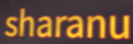
sharanu